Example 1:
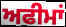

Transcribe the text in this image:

ਅਫੀਮਾਂ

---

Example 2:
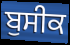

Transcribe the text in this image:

ਬੁਸੀਕ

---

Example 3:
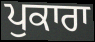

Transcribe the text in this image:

ਪੁਕਾਰਾ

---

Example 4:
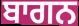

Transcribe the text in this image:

ਬਾਗਨ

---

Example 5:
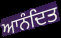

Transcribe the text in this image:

ਆਨੰਦਿਤ